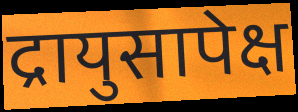
द्रायुसापेक्ष